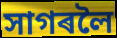
সাগৰলৈ